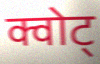
क्वोट्